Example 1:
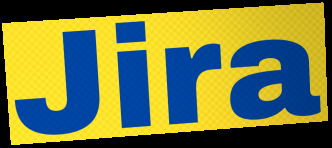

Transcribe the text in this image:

Jira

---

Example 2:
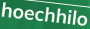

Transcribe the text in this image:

hoechhilo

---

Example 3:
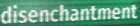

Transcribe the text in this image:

disenchantment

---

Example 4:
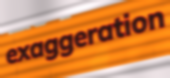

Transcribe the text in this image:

exaggeration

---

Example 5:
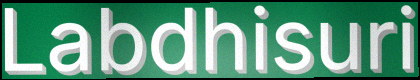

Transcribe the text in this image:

Labdhisuri